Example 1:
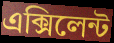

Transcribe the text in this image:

এক্সিলেন্ট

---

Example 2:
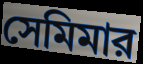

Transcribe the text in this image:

সেমিমার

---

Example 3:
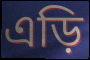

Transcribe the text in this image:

এড়ি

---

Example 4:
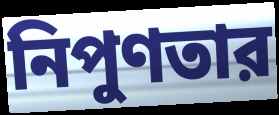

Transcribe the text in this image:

নিপুণতার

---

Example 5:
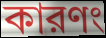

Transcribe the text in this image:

কারণং